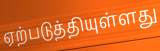
ஏற்படுத்தியுள்ளது